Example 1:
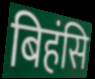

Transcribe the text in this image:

बिहंसि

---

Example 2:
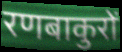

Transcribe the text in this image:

रणबाकुरों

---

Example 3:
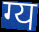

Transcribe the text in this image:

ग्य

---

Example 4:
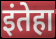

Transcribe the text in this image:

इंतेहा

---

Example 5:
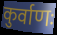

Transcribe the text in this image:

कुर्वाणः